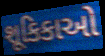
શૂકિકાઓ